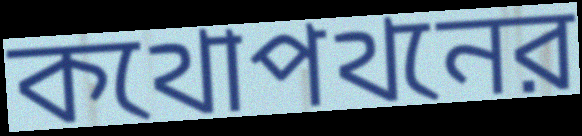
কথোপথনের